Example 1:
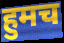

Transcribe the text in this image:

हुमच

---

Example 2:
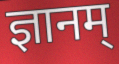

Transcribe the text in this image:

ज्ञानम्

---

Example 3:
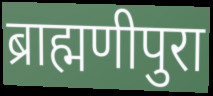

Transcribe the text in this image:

ब्राह्मणीपुरा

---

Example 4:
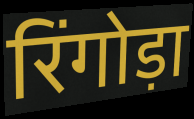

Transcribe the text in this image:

रिंगोड़ा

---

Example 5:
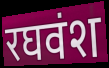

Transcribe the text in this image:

रघवंश